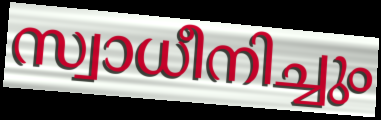
സ്വാധീനിച്ചും